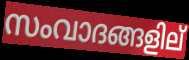
സംവാദങ്ങളില്